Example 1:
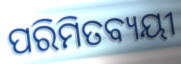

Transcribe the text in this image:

ପରିମିତବ୍ୟୟୀ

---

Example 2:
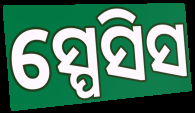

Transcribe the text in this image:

ସ୍ପେସିସ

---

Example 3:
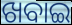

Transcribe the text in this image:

ଖବାଇ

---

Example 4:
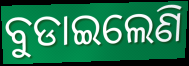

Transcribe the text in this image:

ବୁଡାଇଲେଣି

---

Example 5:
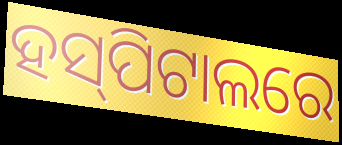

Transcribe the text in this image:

ହସ୍‍ପିଟାଲରେ